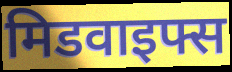
मिडवाइफ्स